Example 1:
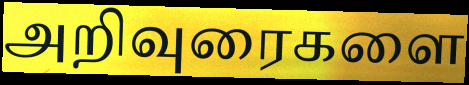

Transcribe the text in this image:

அறிவுரைகளை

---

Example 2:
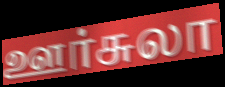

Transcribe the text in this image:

ஊர்சுலா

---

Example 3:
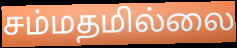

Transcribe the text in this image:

சம்மதமில்லை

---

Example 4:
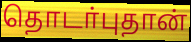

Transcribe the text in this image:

தொடர்புதான்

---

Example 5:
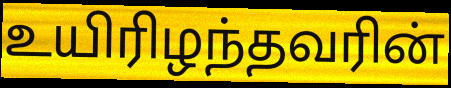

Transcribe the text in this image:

உயிரிழந்தவரின்